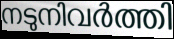
നടുനിവർത്തി